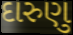
દારુણુ